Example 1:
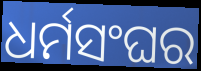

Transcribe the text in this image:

ଧର୍ମସଂଘର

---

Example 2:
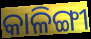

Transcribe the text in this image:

କାଳିଙ୍ଗୀ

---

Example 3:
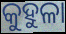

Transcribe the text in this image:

କୁହୁଳା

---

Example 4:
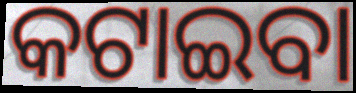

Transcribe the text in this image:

କଟାଇବା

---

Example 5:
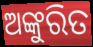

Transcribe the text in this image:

ଅଙ୍କୁରିତ